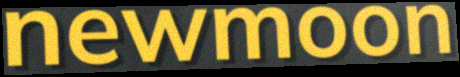
newmoon